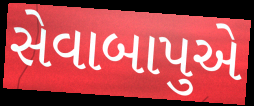
સેવાબાપુએ